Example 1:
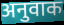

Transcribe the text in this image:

अनुवाक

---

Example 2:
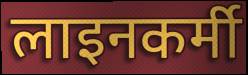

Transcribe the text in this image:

लाइनकर्मी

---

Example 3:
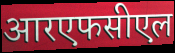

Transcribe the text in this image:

आरएफसीएल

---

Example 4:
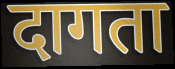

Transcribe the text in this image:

दागता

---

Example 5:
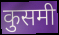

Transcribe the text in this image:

कुसमी